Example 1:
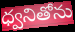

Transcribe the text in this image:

ధ్వనితోను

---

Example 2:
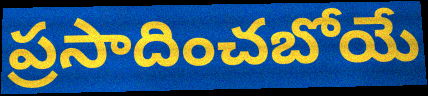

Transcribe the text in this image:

ప్రసాదించబోయే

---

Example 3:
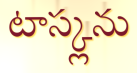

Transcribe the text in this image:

టాస్క్లను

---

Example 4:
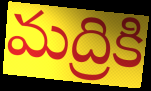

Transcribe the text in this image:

మద్రికి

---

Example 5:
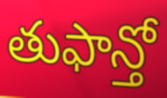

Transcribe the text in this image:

తుఫాన్తో